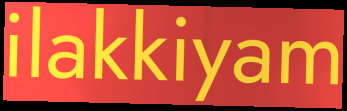
ilakkiyam